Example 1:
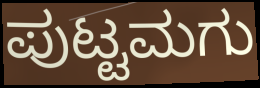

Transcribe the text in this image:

ಪುಟ್ಟಮಗು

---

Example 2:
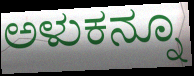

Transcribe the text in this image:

ಅಳುಕನ್ನೂ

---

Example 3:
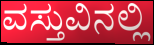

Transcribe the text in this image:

ವಸ್ತುವಿನಲ್ಲಿ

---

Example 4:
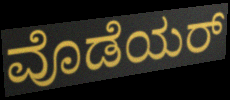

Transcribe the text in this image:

ವೊಡೆಯರ್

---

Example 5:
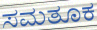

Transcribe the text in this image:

ಸಮತೂಕ